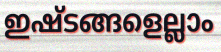
ഇഷ്ടങ്ങളെല്ലാം